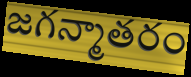
జగన్మాతరం